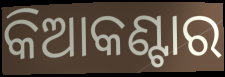
କିଆକଣ୍ଟାର